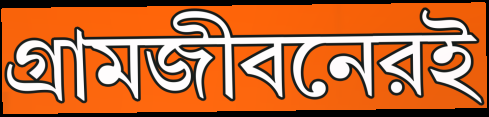
গ্রামজীবনেরই